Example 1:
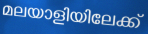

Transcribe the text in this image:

മലയാളിയിലേക്ക്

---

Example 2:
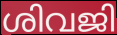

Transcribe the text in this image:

ശിവജി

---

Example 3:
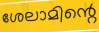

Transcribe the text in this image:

ശേലാമിന്റെ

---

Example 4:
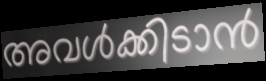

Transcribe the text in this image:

അവൾക്കിടാൻ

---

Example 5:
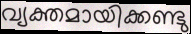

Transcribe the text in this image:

വ്യക്തമായിക്കണ്ടു